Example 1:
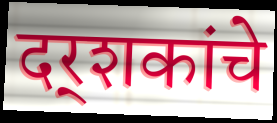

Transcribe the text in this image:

दर्शकांचे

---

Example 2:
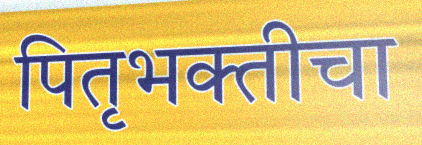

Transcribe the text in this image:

पितृभक्तीचा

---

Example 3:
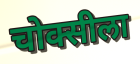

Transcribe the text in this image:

चोक्सीला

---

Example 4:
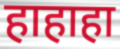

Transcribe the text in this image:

हाहाहा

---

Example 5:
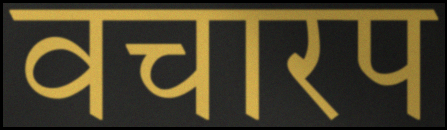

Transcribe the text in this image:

वचारप